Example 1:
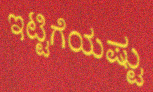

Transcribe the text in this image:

ಇಟ್ಟಿಗೆಯಷ್ಟು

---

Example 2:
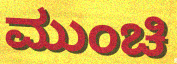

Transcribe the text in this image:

ಮುಂಚಿ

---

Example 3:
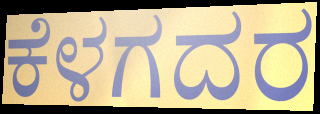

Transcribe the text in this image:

ಕೆಳಗದರ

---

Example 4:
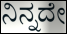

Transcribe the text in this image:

ನಿನ್ನದೇ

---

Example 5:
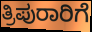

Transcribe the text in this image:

ತ್ರಿಪುರಾರಿಗೆ